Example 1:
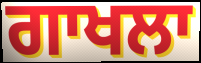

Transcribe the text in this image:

ਗਾਖਲਾ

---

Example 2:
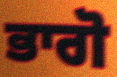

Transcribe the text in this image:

ਭਾਗੋ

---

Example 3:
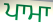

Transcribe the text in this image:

ਪਾਮਾ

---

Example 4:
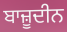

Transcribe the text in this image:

ਬਾਜ਼ੂਦੀਨ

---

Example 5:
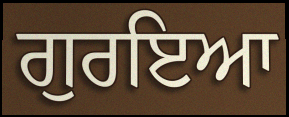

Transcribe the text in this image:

ਗੁਰਇਆ